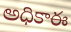
అధికాఈ